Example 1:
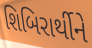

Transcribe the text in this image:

શિબિરાર્થીને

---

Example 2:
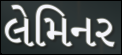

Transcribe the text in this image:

લેમિનર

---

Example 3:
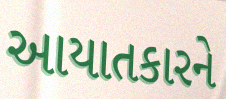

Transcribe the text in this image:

આયાતકારને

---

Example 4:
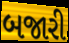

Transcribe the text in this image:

બજારી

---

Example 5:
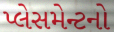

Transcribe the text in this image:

પ્લેસમેન્ટનો